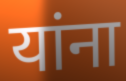
यांना